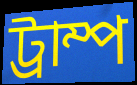
ট্রাম্প